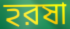
হরষা